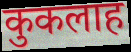
कुकलाह